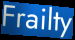
Frailty